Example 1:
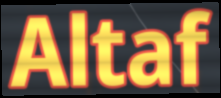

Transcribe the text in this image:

Altaf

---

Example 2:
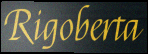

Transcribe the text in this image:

Rigoberta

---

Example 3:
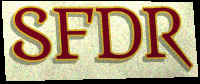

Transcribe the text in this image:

SFDR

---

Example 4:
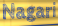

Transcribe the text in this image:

Nagari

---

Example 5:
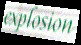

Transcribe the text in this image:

explosion